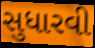
સુધારવી